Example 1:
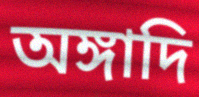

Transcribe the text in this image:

অঙ্গাদি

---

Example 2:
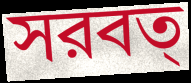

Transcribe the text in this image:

সরবত্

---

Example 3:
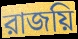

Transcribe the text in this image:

রাজয়ি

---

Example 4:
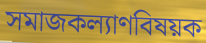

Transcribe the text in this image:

সমাজকল্যাণবিষয়ক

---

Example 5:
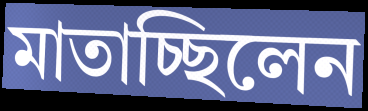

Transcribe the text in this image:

মাতাচ্ছিলেন